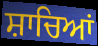
ਸ਼ਾਚਿਆਂ